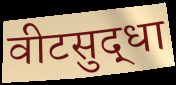
वीटसुद्धा